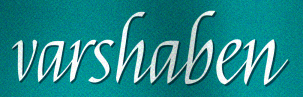
varshaben